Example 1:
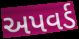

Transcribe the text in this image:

અપવર્ડ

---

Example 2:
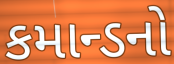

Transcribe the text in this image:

કમાન્ડનો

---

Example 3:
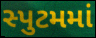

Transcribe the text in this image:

સ્પુટમમાં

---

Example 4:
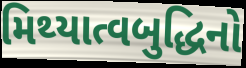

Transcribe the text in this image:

મિથ્યાત્વબુદ્ધિનો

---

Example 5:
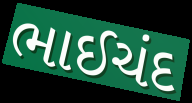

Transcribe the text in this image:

ભાઈચંદ